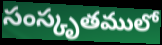
సంస్కృతములో